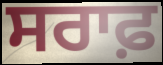
ਸਰਾਫ਼